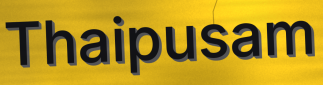
Thaipusam